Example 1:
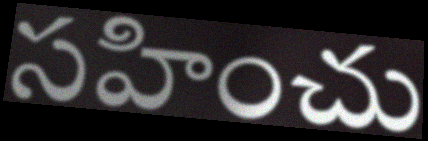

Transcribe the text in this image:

సహించు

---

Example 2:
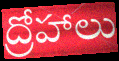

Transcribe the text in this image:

ద్రోహాలు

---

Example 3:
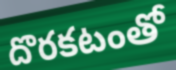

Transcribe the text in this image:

దొరకటంతో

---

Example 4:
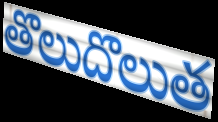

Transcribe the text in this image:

తొలుదొలుత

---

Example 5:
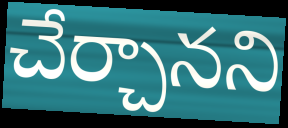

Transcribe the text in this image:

చేర్చానని